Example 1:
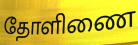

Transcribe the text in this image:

தோளிணை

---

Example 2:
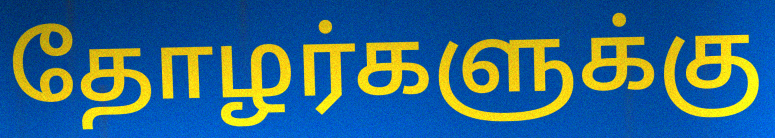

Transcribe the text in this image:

தோழர்களுக்கு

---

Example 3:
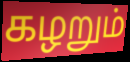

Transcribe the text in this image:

கழறும்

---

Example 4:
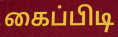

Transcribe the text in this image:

கைப்பிடி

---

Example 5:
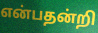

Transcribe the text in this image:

என்பதன்றி